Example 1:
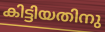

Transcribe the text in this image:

കിട്ടിയതിനു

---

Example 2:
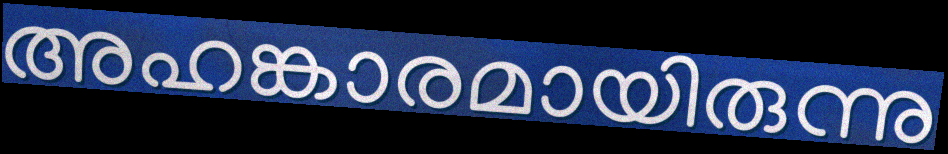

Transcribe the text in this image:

അഹങ്കാരമായിരുന്നു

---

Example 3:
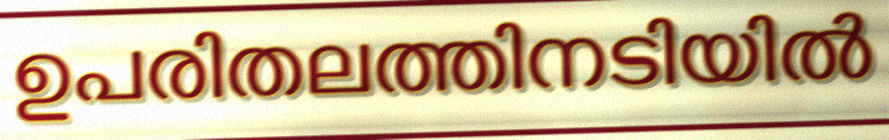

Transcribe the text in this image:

ഉപരിതലത്തിനടിയിൽ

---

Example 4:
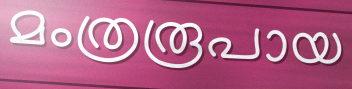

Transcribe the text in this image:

മംത്രരൂപായ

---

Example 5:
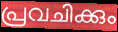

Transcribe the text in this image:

പ്രവചിക്കും